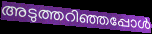
അടുത്തറിഞ്ഞപ്പോൾ